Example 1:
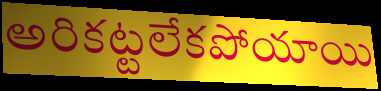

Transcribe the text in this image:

అరికట్టలేకపోయాయి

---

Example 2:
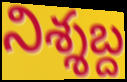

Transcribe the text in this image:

నిశ్శబ్ద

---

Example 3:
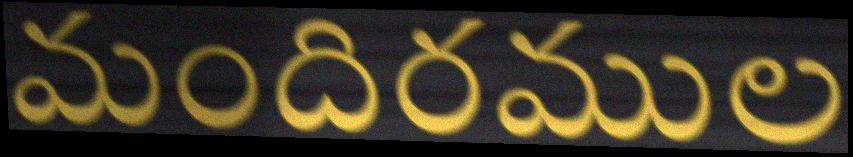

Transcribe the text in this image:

మందిరముల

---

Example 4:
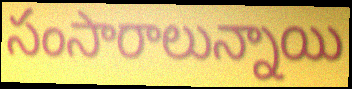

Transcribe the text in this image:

సంసారాలున్నాయి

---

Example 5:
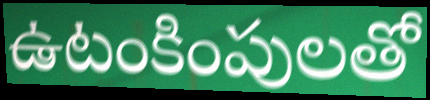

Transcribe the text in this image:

ఉటంకింపులతో